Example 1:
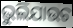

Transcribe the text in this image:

ଭୁଲିଯାଉଚ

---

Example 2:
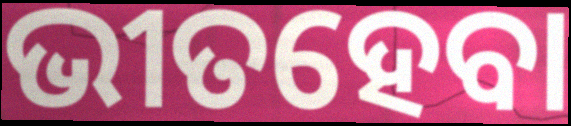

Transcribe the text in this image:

ଭୀତହେବା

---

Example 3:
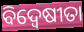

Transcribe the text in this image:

ବିଦ୍ଵେଷୀତା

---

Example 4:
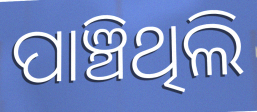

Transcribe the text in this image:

ପାଞ୍ଚିଥିଲି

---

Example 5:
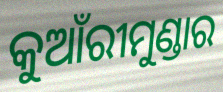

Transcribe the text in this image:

କୁଆଁରୀମୁଣ୍ଡାର